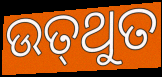
ଉତ୍‌ଥୁତ